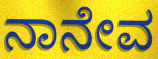
ನಾನೇವ